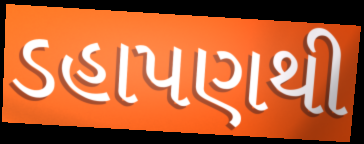
ડહાપણથી